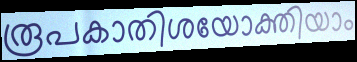
രൂപകാതിശയോക്തിയാം